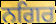
ਨਗਿਰ